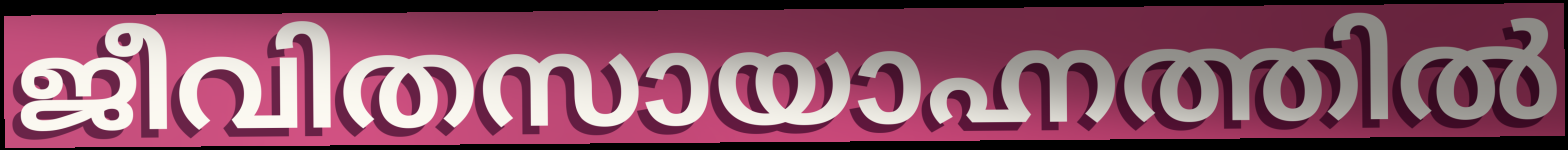
ജീവിതസായാഹ്നത്തിൽ